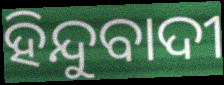
ହିନ୍ଦୁବାଦୀ